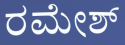
ರಮೇಶ್